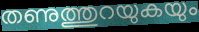
തണുത്തുറയുകയും